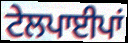
ਟੇਲਪਾਈਪਾਂ